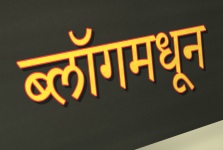
ब्लॉगमधून